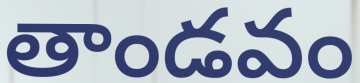
తాండవం